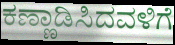
ಕಣ್ಣಾಡಿಸಿದವಳಿಗೆ